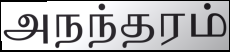
அநந்தரம்